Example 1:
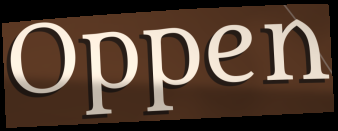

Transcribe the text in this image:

Oppen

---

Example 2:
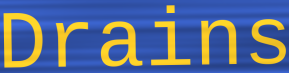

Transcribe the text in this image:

Drains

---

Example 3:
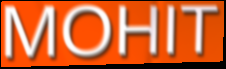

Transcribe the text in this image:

MOHIT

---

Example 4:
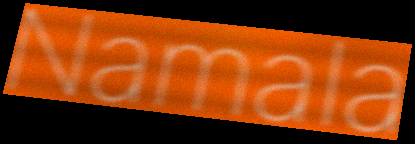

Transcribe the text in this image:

Namala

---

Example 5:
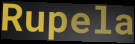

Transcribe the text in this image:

Rupela